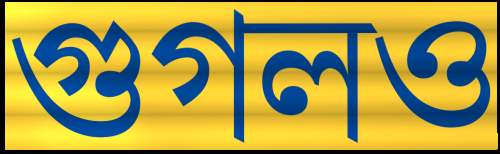
গুগলও